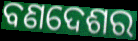
ବଣଦେଶର